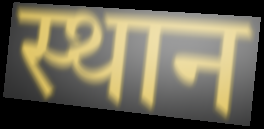
स्‍थान